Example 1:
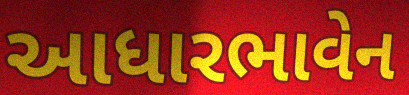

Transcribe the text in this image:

આધારભાવેન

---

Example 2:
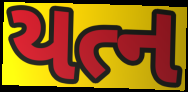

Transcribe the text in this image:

યત્ન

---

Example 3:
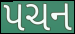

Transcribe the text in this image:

પચન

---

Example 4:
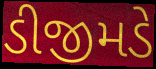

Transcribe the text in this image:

ડીજીમડે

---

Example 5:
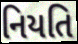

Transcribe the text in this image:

નિયતિ